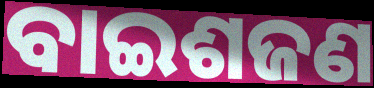
ବାଇଶଜଣ